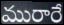
మురారే